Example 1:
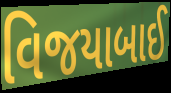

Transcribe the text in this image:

વિજયાબાઈ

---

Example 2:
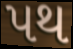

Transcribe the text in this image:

પથ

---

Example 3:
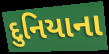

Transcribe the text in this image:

દુનિયાના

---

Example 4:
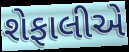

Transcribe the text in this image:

શેફાલીએ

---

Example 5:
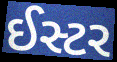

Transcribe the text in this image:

ઈસ્ટર